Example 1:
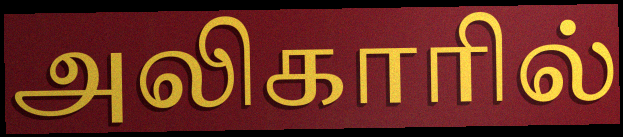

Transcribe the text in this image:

அலிகாரில்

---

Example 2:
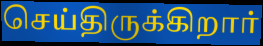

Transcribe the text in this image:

செய்திருக்கிறார்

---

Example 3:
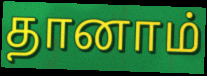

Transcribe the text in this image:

தானாம்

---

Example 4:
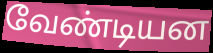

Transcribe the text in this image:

வேண்டியன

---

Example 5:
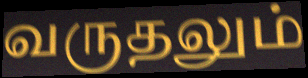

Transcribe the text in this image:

வருதலும்